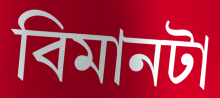
বিমানটা